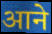
आने